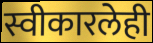
स्वीकारलेही